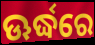
ଊର୍ଦ୍ଧରେ